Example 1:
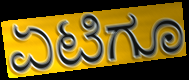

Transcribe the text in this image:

ಏಟಿಗೂ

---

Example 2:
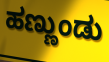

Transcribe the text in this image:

ಹಣ್ಣುಂಡು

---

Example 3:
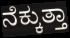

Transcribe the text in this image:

ನೆಕ್ಕುತ್ತಾ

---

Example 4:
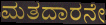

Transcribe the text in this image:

ಮತದಾರನೇ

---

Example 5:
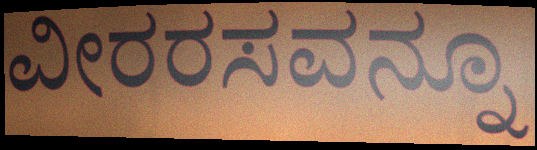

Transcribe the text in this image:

ವೀರರಸವನ್ನೂ